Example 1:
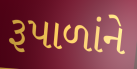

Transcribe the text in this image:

રૂપાળાંને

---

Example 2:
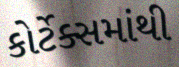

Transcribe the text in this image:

કોર્ટેક્સમાંથી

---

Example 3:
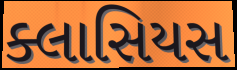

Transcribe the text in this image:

ક્લાસિયસ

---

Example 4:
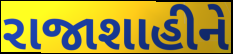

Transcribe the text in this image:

રાજાશાહીને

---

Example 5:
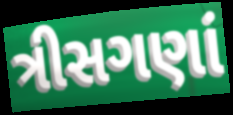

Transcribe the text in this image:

ત્રીસગણાં